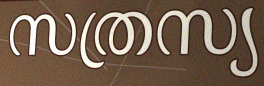
സത്രസ്യ